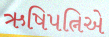
ઋષિપત્નિએ